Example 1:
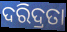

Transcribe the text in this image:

ଦରିଦ୍ରତା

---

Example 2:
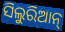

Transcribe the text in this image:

ସିଲୁରିଆନ୍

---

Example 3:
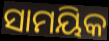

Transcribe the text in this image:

ସାମୟିକ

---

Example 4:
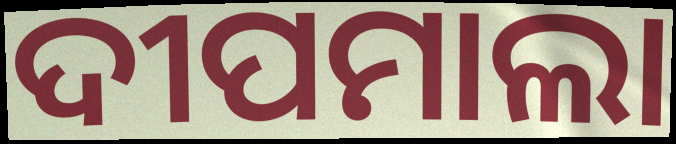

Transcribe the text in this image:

ଦୀପମାଲା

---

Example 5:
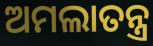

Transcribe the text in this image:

ଅମଲାତନ୍ତ୍ର